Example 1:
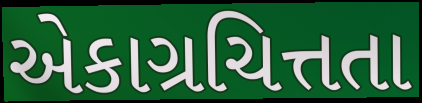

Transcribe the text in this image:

એકાગ્રચિત્તતા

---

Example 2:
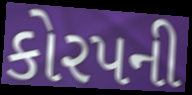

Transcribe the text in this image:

કોરપની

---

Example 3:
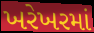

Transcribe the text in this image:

ખરેખરમાં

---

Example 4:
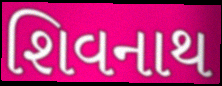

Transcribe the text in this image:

શિવનાથ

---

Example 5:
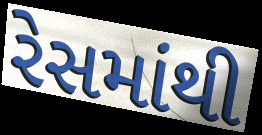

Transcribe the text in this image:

રેસમાંથી